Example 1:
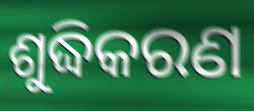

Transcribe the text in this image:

ଶୁଦ୍ଧିକରଣ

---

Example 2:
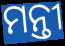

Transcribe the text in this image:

ମନ୍ତୀ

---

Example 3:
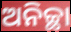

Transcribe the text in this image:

ଅନିଚ୍ଛା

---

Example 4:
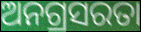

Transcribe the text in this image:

ଅନଗ୍ରସରତା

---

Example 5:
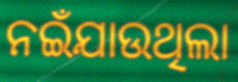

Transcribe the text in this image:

ନଇଁଯାଉଥିଲା